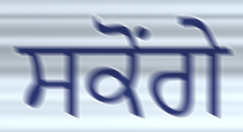
ਸਕੋਂਗੇ